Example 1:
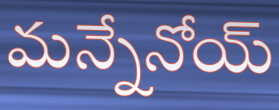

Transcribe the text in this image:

మన్నేనోయ్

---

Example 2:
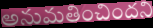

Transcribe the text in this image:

అనుమతించిందని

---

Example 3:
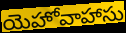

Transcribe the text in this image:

యెహోవాహాసు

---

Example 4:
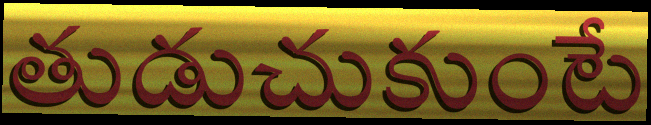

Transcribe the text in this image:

తుడుచుకుంటే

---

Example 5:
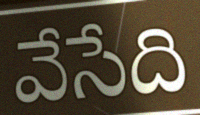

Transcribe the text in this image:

వేసేది